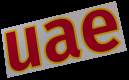
uae